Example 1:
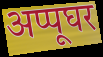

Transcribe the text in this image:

अप्पूघर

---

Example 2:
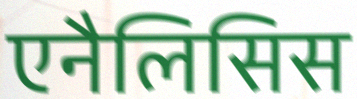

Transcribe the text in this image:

एनैलिसिस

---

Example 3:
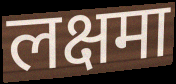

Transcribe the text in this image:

लक्षमा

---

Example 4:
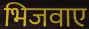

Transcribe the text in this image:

भिजवाए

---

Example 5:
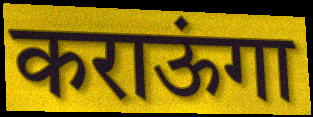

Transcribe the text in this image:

कराऊंगा